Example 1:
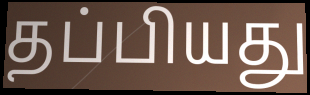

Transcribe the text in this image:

தப்பியது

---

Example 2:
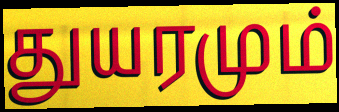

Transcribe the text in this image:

துயரமும்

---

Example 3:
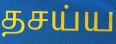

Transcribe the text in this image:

தசய்ய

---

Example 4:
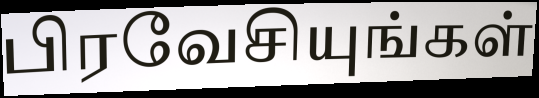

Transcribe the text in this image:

பிரவேசியுங்கள்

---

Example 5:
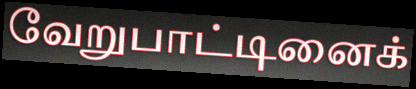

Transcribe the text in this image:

வேறுபாட்டினைக்